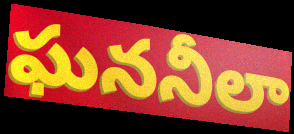
ఘననీలా